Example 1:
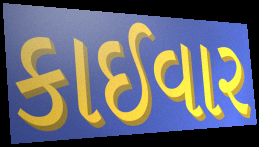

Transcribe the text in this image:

કાઈવાર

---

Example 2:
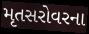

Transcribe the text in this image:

મૃતસરોવરના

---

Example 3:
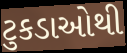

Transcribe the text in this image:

ટુકડાઓથી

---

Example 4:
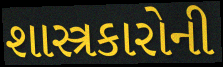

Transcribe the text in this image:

શાસ્ત્રકારોની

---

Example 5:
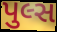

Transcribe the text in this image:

પુલ્સ